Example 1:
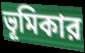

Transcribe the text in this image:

ভূমিকার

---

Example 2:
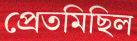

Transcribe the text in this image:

প্রেতমিছিল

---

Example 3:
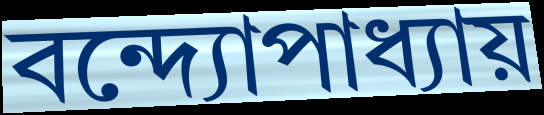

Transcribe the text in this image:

বন্দ্যোপাধ্যায়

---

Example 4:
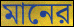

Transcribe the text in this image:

মানের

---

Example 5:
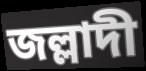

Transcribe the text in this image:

জল্লাদী